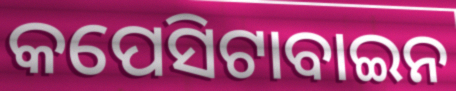
କପେସିଟାବାଇନ